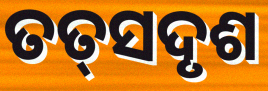
ତତ୍‌ସଦୃଶ